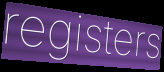
registers